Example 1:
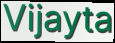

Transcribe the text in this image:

Vijayta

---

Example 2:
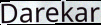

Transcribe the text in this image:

Darekar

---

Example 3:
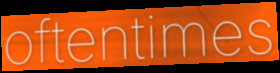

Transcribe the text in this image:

oftentimes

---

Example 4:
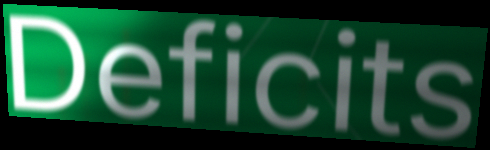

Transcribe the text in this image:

Deficits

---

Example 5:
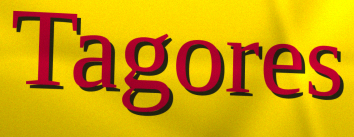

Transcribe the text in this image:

Tagores